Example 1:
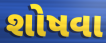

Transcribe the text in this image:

શોષવા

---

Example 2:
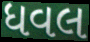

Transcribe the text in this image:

ધવલ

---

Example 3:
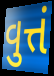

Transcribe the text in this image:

વુત્તં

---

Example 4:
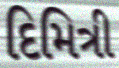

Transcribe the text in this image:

દિમિત્રી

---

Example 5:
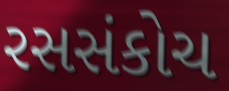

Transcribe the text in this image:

રસસંકોચ